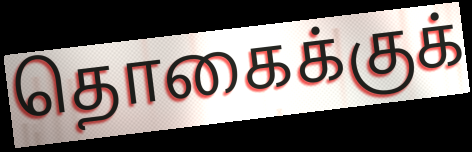
தொகைக்குக்